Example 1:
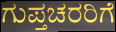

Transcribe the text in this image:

ಗುಪ್ತಚರರಿಗೆ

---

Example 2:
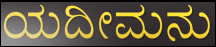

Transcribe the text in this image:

ಯದೀಮನು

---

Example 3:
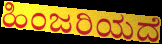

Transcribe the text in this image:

ಹಿಂಜರಿಯದೆ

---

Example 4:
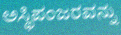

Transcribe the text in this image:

ಅಸ್ಥಿಪಂಜರವನ್ನು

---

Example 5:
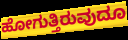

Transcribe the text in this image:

ಹೋಗುತ್ತಿರುವುದೂ